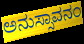
ಅನುಸ್ಸಾವನಂ